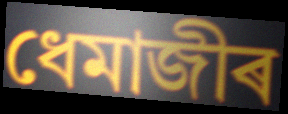
ধেমাজীৰ